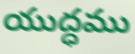
యుద్ధము